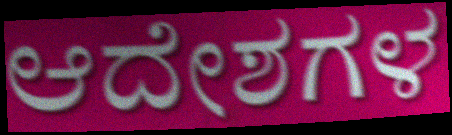
ಆದೇಶಗಳ